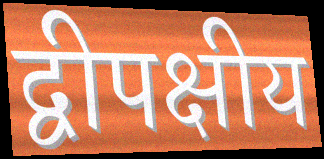
द्वीपक्षीय